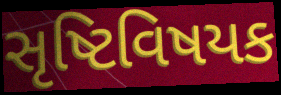
સૃષ્ટિવિષયક